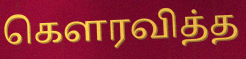
கெளரவித்த